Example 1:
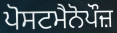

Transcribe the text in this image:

ਪੋਸਟਮੈਨੋਪੌਜ਼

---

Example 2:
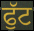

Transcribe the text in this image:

ਫੁੱਟ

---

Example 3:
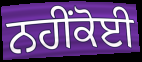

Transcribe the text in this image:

ਨਹੀਂਕੋਈ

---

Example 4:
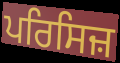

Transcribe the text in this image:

ਪਰਿਸਿਜ਼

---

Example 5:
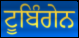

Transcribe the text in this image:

ਟੂਬਿੰਗੇਨ